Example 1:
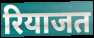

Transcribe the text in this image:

रियाजत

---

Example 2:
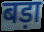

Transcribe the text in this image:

बड़ा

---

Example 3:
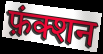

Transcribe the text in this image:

फ़ंक्शन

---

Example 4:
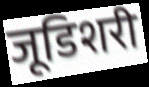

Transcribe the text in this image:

जूडिशरी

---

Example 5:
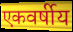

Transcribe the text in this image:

एकवर्षीय